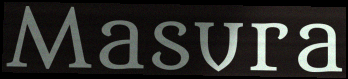
Masura